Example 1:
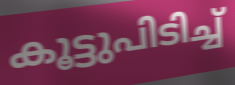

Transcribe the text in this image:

കൂട്ടുപിടിച്ച്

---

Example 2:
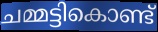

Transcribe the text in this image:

ചമ്മട്ടികൊണ്ട്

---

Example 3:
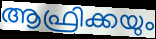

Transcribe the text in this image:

ആഫ്രിക്കയും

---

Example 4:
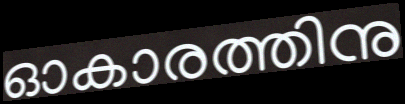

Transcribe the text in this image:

ഓകാരത്തിനു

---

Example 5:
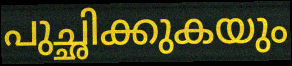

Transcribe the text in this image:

പുച്ഛിക്കുകയും